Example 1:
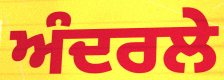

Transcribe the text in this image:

ਅੰਦਰਲੇ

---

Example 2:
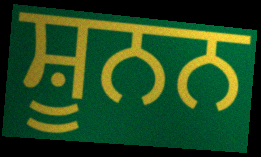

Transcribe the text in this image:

ਸ਼ੂਨਨ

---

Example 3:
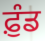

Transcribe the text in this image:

ਫ਼ੁੰਡ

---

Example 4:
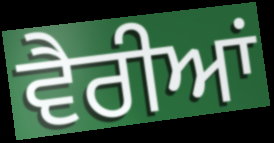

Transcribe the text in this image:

ਵੈਰੀਆਂ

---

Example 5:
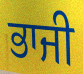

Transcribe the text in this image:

ਭਾਜੀ